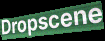
Dropscene